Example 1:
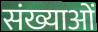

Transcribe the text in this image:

संख्याओं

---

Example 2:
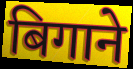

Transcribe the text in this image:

बिगाने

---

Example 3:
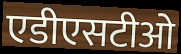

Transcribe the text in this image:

एडीएसटीओ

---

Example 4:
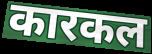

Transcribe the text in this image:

कारकल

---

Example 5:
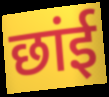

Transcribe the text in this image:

छांई